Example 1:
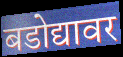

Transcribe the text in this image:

बडोद्यावर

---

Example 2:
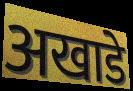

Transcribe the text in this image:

अखाडे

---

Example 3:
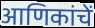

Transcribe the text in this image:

आणिकांचें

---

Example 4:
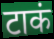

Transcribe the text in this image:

टाकं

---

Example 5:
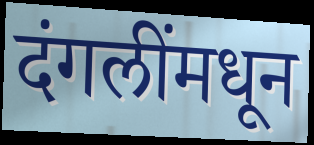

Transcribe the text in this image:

दंगलींमधून